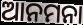
ଆନମନା